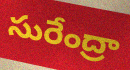
సురేంద్రా